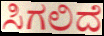
ಸಿಗಲಿದೆ